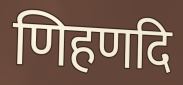
णिहणदि